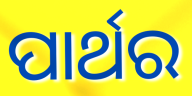
ପାର୍ଥର